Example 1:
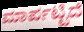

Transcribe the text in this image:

ಮಾರ್ಪಟ್ಟಿದೆ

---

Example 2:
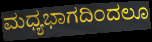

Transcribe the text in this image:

ಮಧ್ಯಭಾಗದಿಂದಲೂ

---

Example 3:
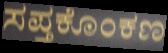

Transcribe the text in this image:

ಸಪ್ತಕೊಂಕಣ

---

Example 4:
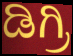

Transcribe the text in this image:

ಡಿಗ್ರಿ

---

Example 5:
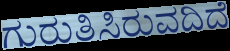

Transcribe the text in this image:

ಗುರುತಿಸಿರುವದಿದೆ